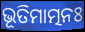
ଭୂତିମାତ୍ମନଃ